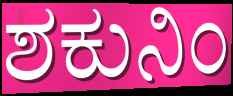
ಶಕುನಿಂ